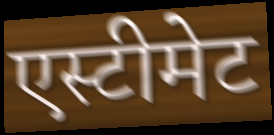
एस्टीमेट